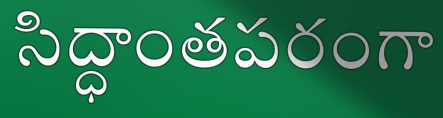
సిద్ధాంతపరంగా